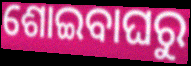
ଶୋଇବାଘରୁ